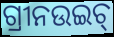
ଗ୍ରୀନଉଇଚ୍